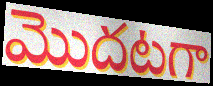
మొదటగా